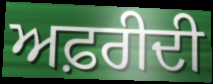
ਅਫ਼ਰੀਦੀ